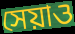
সেয়াও